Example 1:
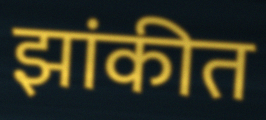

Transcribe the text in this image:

झांकीत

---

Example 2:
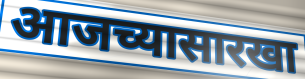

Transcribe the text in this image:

आजच्यासारखा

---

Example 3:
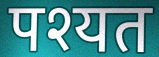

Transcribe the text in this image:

पश्यत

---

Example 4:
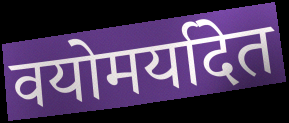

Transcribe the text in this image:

वयोमर्यादेत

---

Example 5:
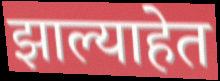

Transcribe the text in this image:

झाल्याहेत